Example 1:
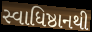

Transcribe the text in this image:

સ્વાધિષ્ઠાનથી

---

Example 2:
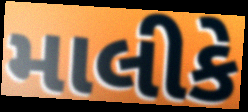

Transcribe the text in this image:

માલીકે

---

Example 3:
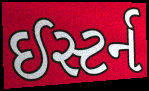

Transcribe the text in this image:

ઈસ્ટર્ન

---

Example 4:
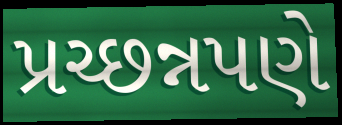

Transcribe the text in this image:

પ્રચ્છન્નપણે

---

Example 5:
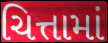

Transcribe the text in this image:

ચિત્તામાં